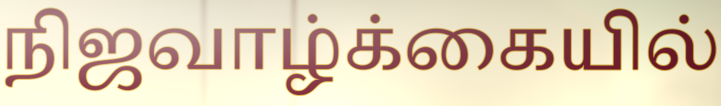
நிஜவாழ்க்கையில்